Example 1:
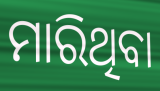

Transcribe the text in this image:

ମାରିଥିବା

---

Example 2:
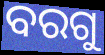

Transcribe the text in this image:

ବରଗୁ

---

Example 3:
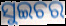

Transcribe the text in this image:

ସୁଇଚର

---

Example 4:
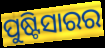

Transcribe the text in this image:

ପୁଷ୍ଟିସାରର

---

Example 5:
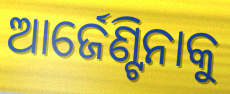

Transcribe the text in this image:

ଆର୍ଜେଣ୍ଟିନାକୁ